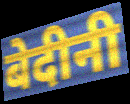
बेदीनी